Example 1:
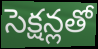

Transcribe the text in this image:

సెక్షన్లతో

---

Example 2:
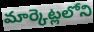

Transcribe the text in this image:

మార్కెట్లలోని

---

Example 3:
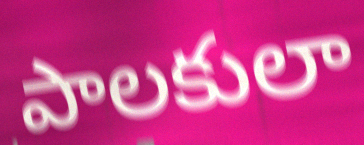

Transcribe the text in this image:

పాలకులా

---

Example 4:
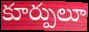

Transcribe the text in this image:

కూర్పులూ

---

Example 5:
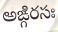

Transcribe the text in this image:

అఙ్గిరసః